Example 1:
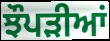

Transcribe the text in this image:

ਝੌਪੜੀਆਂ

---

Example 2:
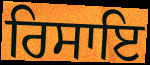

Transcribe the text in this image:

ਰਿਸਾਇ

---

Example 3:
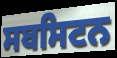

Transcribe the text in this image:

ਸਬਸਿਟਨ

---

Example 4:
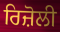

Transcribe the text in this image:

ਰਿਜ਼ੋਲੀ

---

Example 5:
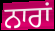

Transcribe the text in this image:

ਨਾਰਾਂ